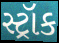
સ્ટ્રૉક